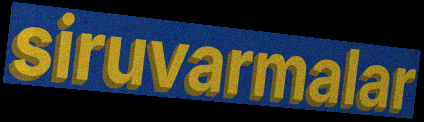
siruvarmalar